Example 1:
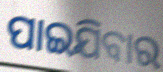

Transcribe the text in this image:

ପାଇଯିବାର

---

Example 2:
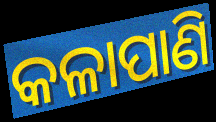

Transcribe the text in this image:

କଳାପାଣି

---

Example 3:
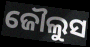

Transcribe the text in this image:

ଜୌଲୁସ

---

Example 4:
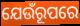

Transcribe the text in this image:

ଯେଉଁରୂପରେ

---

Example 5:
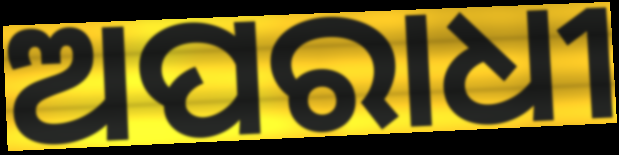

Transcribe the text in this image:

ଅପରାଧୀ